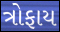
ત્રોફાય